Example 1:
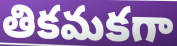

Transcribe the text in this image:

తికమకగా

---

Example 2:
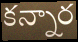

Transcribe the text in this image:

కన్నార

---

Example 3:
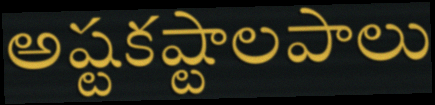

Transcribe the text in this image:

అష్టకష్టాలపాలు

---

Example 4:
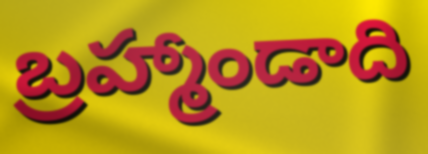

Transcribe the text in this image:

బ్రహ్మాండాది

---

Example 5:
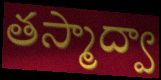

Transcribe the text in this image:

తస్మాద్వా